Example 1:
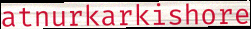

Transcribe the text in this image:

atnurkarkishore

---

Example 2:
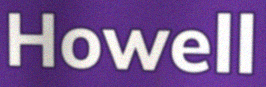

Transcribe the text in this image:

Howell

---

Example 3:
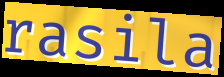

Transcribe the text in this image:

rasila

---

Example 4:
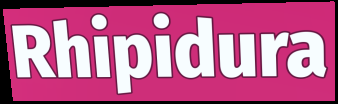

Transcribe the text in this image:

Rhipidura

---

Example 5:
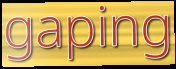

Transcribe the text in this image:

gaping